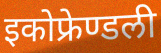
इकोफ्रेण्डली